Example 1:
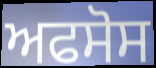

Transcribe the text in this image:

ਅਫਸੋਸ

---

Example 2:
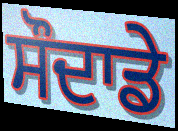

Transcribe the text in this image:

ਸੌਦਾਡੇ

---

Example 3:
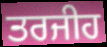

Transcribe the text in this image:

ਤਰਜੀਹ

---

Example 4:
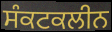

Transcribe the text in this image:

ਸੰਕਟਕਲੀਨ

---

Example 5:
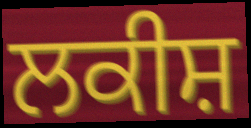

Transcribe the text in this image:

ਲਕੀਸ਼